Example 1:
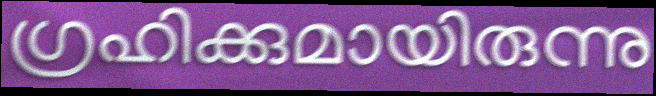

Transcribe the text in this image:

ഗ്രഹിക്കുമായിരുന്നു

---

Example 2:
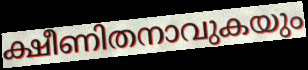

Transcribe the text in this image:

ക്ഷീണിതനാവുകയും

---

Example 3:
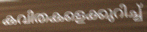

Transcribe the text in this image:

കവിതകളെക്കുറിച്ച്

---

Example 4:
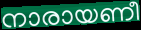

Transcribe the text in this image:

നാരായണീ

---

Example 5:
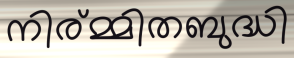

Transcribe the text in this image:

നിര്മ്മിതബുദ്ധി